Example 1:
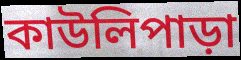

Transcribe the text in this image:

কাউলিপাড়া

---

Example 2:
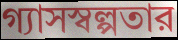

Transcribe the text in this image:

গ্যাসস্বল্পতার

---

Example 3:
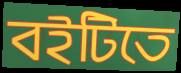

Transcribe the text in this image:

বইটিতে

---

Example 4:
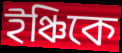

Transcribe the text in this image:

ইঞ্চিকে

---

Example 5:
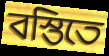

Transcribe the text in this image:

বস্তিতে